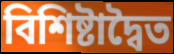
বিশিষ্টাদ্বৈত